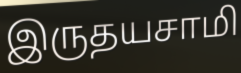
இருதயசாமி